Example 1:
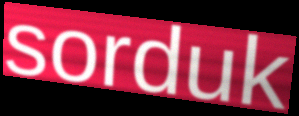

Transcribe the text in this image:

sorduk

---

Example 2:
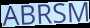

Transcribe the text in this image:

ABRSM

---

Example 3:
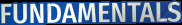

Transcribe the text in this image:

FUNDAMENTALS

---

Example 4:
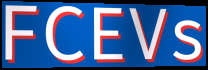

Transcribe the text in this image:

FCEVs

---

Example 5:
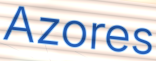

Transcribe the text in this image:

Azores